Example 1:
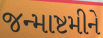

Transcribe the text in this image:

જન્માષ્ટમીને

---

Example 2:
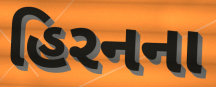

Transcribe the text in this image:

હિરનના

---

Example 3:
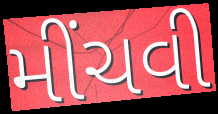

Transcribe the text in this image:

મીંચવી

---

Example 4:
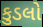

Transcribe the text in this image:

કુડલો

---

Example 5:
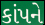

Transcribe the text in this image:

કાંપને